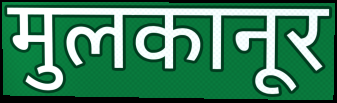
मुलकानूर